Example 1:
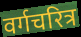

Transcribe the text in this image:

वर्गचरित्र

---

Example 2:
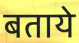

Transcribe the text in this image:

बताये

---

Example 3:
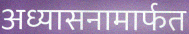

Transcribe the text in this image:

अध्यासनामार्फत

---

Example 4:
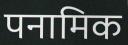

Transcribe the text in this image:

पनामिक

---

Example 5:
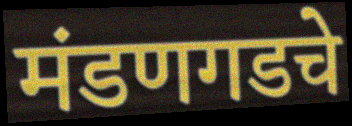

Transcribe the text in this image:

मंडणगडचे